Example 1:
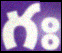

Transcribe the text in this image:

గః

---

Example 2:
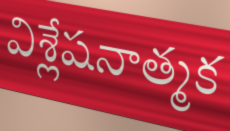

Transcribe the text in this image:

విశ్లేషనాత్మక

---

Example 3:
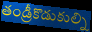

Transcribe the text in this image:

తండ్రీకొడుకుల్ని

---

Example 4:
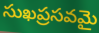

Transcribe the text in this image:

సుఖప్రసవమై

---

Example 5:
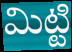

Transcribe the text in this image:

మిట్టి